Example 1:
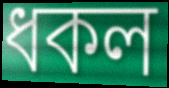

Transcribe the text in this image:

ধকল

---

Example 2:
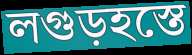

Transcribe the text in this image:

লগুড়হস্তে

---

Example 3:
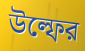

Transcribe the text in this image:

উল্ফের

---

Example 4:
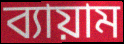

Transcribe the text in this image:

ব্যায়াম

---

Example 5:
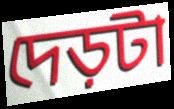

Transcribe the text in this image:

দেড়টা